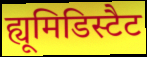
ह्यूमिडिस्टैट